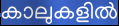
കാലുകളിൽ